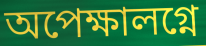
অপেক্ষালগ্নে